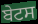
ਬੇਟਸ